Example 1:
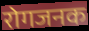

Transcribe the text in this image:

रोगजनक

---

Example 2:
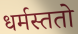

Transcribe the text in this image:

धर्मस्ततो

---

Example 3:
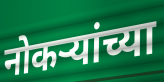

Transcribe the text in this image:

नोकऱ्यांच्या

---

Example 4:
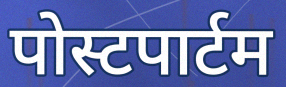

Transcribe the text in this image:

पोस्टपार्टम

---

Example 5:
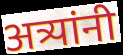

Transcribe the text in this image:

अत्र्यांनी